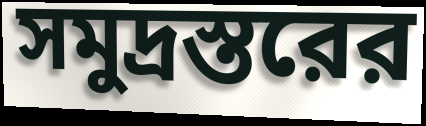
সমুদ্রস্তরের